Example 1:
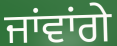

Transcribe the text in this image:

ਜਾਂਵਾਂਗੇ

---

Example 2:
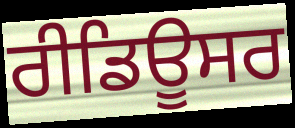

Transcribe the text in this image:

ਰੀਡਿਊਸਰ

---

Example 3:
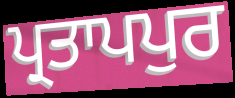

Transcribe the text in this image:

ਪ੍ਰਤਾਪਪੁਰ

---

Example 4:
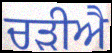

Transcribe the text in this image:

ਚੜੀਐ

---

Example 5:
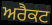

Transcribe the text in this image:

ਅਰੈਕਟ